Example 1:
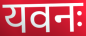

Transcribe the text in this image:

यवनः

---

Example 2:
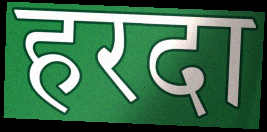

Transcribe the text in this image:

हरदा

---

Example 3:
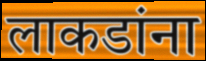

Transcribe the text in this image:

लाकडांना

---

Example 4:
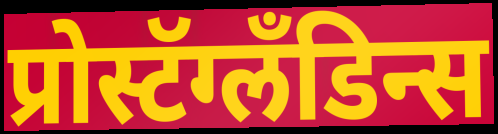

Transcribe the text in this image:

प्रोस्टॅग्लॅंडिन्स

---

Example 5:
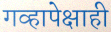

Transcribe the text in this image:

गव्हापेक्षाही